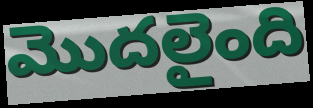
మొదలైంది